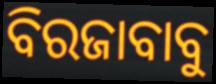
ବିରଜାବାବୁ